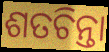
ଶତଚିନ୍ତା